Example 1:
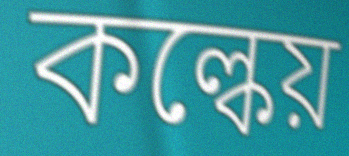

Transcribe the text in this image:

কল্কেয়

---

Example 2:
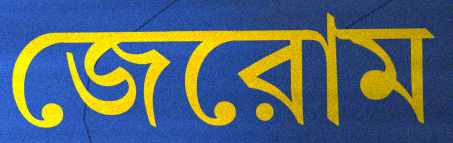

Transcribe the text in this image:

জেরোম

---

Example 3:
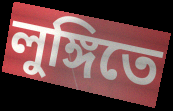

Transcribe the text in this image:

লুঙ্গিতে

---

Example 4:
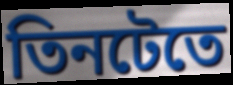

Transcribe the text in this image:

তিনটেতে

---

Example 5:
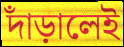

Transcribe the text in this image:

দাঁড়ালেই